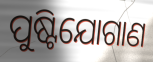
ପୁଷ୍ଟିଯୋଗାଣ